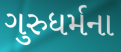
ગુરુધર્મના